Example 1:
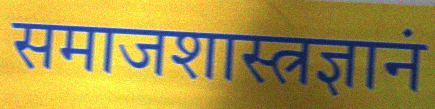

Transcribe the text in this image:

समाजशास्त्रज्ञानं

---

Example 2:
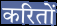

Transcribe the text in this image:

करितों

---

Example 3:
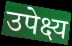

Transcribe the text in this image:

उपेक्ष्य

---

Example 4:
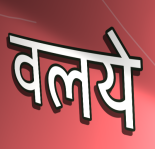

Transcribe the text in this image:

वलये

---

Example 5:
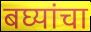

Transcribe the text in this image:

बघ्यांचा